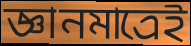
জ্ঞানমাত্রেই